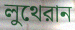
লুথেরান